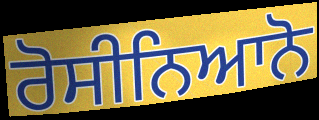
ਰੋਸੀਨਿਆਨੋ